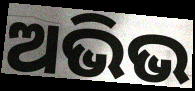
ଅଭିଭ